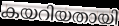
കയറിയതായി